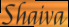
Shaiva